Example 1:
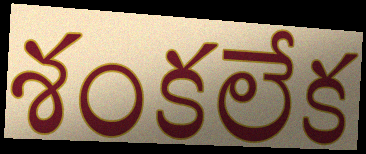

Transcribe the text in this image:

శంకలేక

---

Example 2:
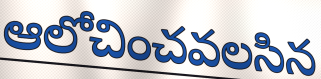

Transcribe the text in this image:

ఆలోచించవలసిన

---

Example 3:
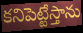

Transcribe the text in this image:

కనిపెట్టేస్తాను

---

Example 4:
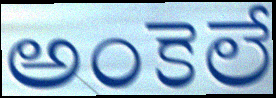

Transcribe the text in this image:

అంకెలే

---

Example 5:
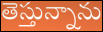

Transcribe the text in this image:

తెస్తున్నాను